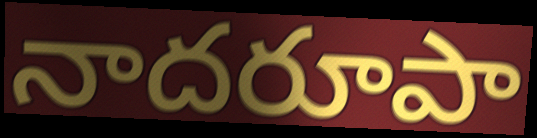
నాదరూపా